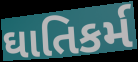
ઘાતિકર્મ